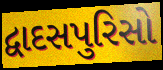
દ્વાદસપુરિસો